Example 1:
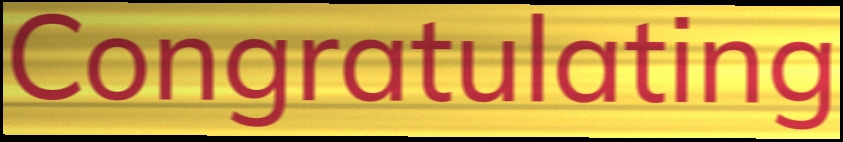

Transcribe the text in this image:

Congratulating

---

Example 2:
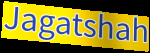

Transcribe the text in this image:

Jagatshah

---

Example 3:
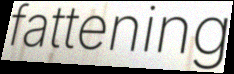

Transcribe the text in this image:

fattening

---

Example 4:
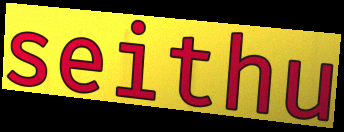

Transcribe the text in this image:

seithu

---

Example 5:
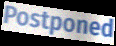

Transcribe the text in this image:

Postponed